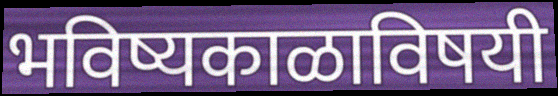
भविष्यकाळाविषयी